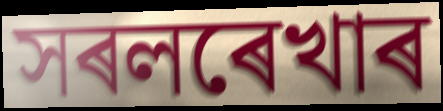
সৰলৰেখাৰ